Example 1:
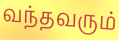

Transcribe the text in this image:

வந்தவரும்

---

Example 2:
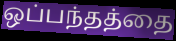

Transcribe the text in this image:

ஒப்பந்தத்தை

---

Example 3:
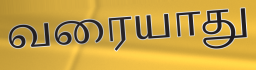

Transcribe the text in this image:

வரையாது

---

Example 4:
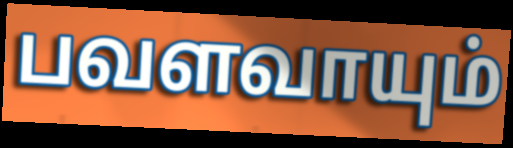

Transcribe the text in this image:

பவளவாயும்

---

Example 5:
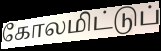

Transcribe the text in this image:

கோலமிட்டுப்